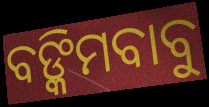
ବଙ୍କିମବାବୁ